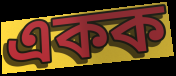
একক